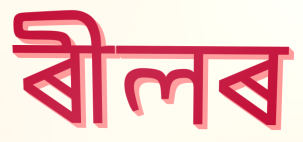
ৰীলৰ